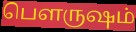
பௌருஷம்